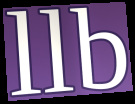
llb